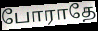
போராதே